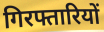
गिरफ्तारियों